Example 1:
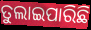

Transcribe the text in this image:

ତୁଲାଇପାରିଛି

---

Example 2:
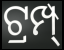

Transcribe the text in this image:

ଟ୍ରମ୍ପ୍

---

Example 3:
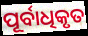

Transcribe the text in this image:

ପୂର୍ବାଧିକୃତ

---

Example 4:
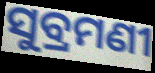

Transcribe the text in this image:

ସୁବ୍ରମଣୀ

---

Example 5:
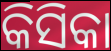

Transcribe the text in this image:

କିସିକା